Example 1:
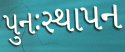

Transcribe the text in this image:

પુનઃસ્થાપન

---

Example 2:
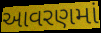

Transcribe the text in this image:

આવરણમાં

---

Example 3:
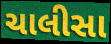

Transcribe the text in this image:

ચાલીસા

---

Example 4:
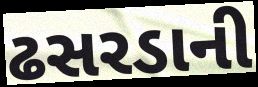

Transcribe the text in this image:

ઢસરડાની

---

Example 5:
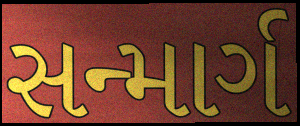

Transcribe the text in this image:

સન્માર્ગ